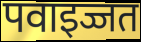
पवाइज्जत